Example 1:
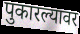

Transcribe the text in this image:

पुकारल्यावर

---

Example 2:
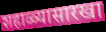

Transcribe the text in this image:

शहाळ्यासारखा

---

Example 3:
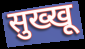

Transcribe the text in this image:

सुख्खू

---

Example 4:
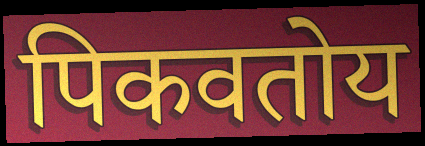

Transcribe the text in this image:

पिकवतोय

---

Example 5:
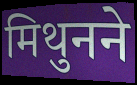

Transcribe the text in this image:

मिथुनने